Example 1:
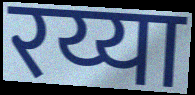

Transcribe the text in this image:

रय्या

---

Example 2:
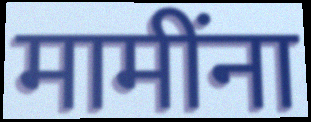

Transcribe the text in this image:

मामींना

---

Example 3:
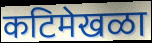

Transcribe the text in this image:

कटिमेखळा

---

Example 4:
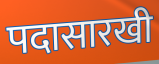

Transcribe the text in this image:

पदासारखी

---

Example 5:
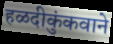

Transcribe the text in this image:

हळदीकुंकवाने